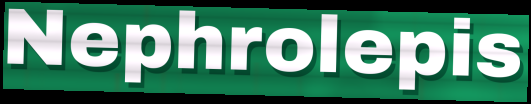
Nephrolepis